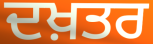
ਦਖ਼ਤਰ